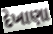
દેખાણા